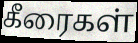
கீரைகள்